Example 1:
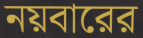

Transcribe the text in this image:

নয়বারের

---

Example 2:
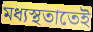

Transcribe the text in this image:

মধ্যস্থতাতেই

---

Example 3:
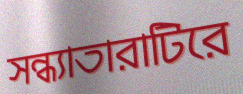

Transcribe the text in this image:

সন্ধ্যাতারাটিরে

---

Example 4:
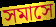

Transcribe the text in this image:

সমাসে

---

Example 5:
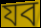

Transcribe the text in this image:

যব